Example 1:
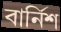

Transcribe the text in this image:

বার্নিশ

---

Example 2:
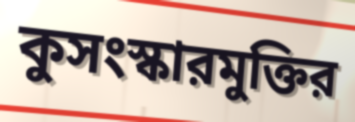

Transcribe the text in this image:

কুসংস্কারমুক্তির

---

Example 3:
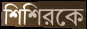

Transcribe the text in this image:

শিশিরকে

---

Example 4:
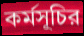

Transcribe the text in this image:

কর্মসূচির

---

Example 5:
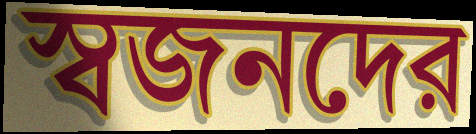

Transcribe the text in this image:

স্বজনদের